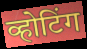
व्होटिंग